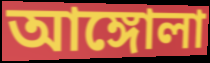
আঙ্গোলা